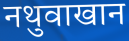
नथुवाखान